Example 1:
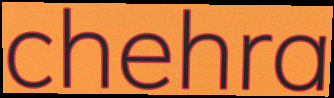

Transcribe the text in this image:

chehra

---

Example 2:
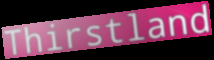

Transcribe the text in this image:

Thirstland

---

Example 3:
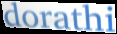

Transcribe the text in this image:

dorathi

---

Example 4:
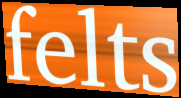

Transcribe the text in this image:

felts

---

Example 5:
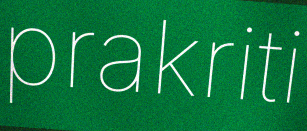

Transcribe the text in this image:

prakriti